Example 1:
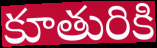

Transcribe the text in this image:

కూతురికి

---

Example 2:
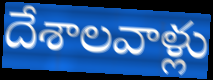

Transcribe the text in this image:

దేశాలవాళ్లు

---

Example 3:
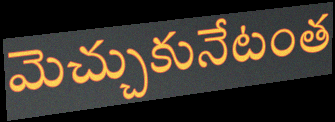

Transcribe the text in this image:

మెచ్చుకునేటంత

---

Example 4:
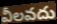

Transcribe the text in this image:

వీలవదు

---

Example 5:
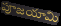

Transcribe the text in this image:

పూజయామి